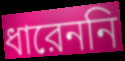
ধারেননি